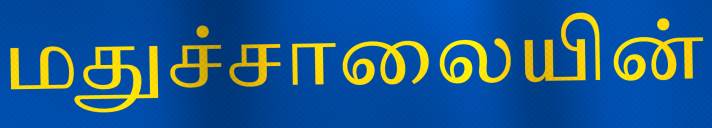
மதுச்சாலையின்